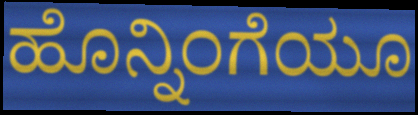
ಹೊನ್ನಿಂಗೆಯೂ